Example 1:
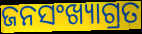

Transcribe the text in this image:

ଜନସଂଖ୍ୟାଗ୍ରତ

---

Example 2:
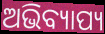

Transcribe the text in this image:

ଅଭିବ୍ୟାପ୍ୟ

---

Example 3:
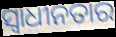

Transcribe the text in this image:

ସ୍ବାଧୀନତାର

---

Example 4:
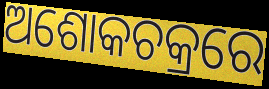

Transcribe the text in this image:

ଅଶୋକଚକ୍ରରେ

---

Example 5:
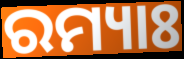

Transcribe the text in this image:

ରମ୍ୟାଃ